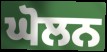
ਘੋਲਨ